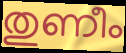
തുണീം